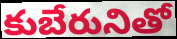
కుబేరునితో